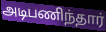
அடிபணிந்தார்